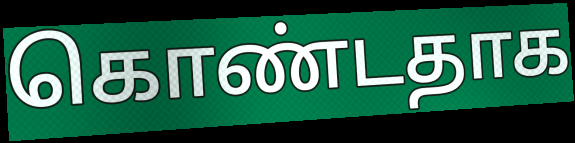
கொண்டதாக